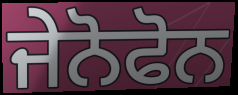
ਜੇਨੋਫੋਨ